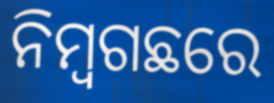
ନିମ୍ବଗଛରେ